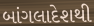
બાંગલાદેશથી